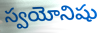
స్వయోనిషు